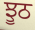
ਝੂਠ